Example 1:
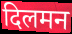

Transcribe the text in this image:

दिलमन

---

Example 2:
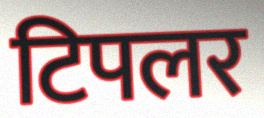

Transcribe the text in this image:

टिपलर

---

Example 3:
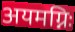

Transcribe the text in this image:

अयमग्निः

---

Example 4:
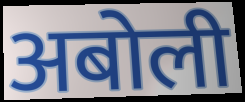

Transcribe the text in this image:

अबोली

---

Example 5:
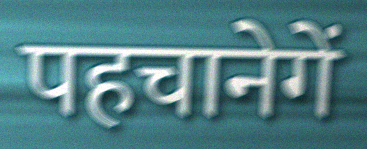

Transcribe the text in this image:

पहचानेगें